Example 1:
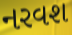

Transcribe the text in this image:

નરવશ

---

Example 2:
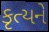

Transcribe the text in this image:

કૃત્યને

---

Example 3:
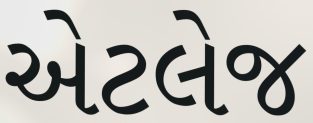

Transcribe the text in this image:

એટલેજ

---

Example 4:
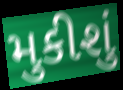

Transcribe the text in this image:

મુકીશું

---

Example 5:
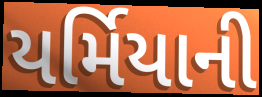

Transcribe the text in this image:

યર્મિયાની